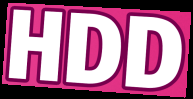
HDD